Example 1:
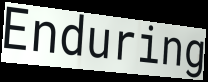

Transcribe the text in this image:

Enduring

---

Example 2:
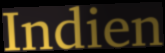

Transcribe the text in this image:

Indien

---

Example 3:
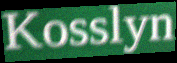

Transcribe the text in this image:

Kosslyn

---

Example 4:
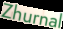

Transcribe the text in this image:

Zhurnal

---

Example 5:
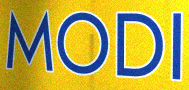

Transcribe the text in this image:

MODI